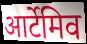
आर्टेमिव